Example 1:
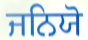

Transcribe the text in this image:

ਜਨਿਯੋ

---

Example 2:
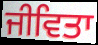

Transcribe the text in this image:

ਜੀਵਿਤਾ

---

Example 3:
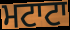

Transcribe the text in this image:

ਮਟਾਟਾ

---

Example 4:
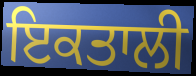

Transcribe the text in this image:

ਇਕਤਾਲੀ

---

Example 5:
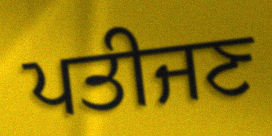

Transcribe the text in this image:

ਪਤੀਜਣ